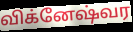
விக்னேஷ்வர